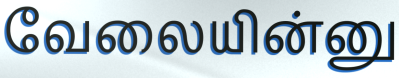
வேலையின்னு